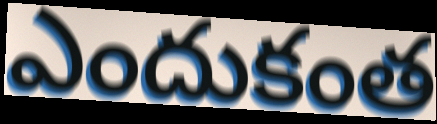
ఎందుకంత